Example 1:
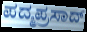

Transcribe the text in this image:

ಪದ್ಮಪ್ರಸಾದ್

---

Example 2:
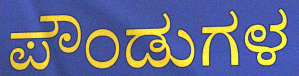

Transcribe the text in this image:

ಪೌಂಡುಗಳ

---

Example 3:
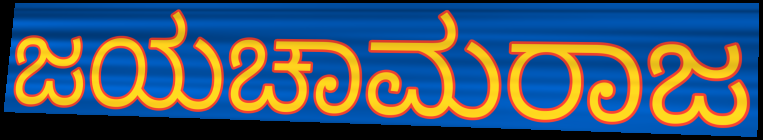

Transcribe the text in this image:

ಜಯಚಾಮರಾಜ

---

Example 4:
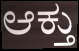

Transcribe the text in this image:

ಆಕ್ತು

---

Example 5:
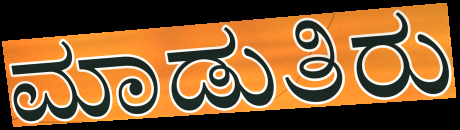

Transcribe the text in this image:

ಮಾಡುತಿರು